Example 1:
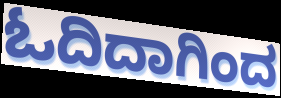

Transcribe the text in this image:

ಓದಿದಾಗಿಂದ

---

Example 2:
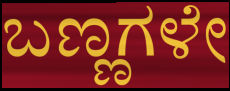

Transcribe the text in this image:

ಬಣ್ಣಗಳೇ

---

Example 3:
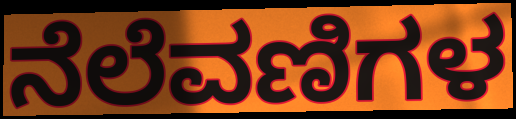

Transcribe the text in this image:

ನೆಲೆವಣಿಗಳ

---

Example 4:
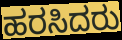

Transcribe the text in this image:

ಹರಸಿದರು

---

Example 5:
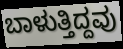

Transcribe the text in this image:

ಬಾಳುತ್ತಿದ್ದವು